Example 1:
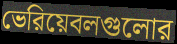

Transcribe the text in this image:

ভেরিয়েবলগুলোর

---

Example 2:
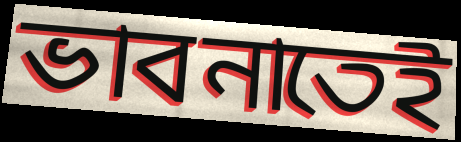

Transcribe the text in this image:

ভাবনাতেই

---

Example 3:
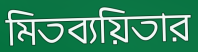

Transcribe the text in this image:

মিতব্যয়িতার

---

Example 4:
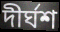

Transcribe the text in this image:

দীর্ঘশ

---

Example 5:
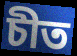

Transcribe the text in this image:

চীত